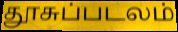
தூசுப்படலம்